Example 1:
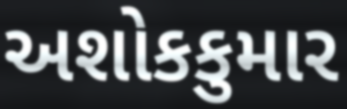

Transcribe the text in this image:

અશોકકુમાર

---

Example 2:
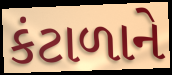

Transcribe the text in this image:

કંટાળાને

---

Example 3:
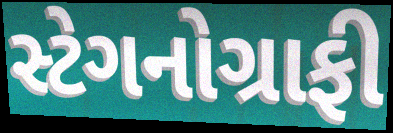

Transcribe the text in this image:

સ્ટેગનોગ્રાફી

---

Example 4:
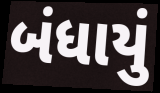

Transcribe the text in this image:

બંધાયું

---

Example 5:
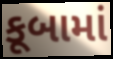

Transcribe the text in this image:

કૂબામાં